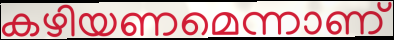
കഴിയണമെന്നാണ്